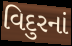
વિદુરનાં